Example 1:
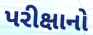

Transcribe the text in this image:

પરીક્ષાનો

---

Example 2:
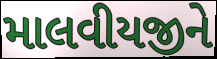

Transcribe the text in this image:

માલવીયજીને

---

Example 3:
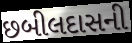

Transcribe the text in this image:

છબીલદાસની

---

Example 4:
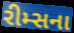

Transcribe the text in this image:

રીમ્સના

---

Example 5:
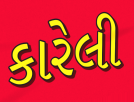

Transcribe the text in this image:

કારેલી